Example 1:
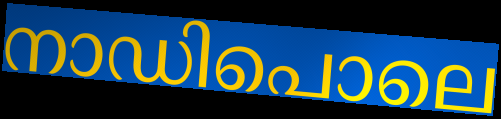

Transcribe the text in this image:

നാഡിപൊലെ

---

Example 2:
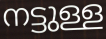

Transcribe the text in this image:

നട്ടുള്ള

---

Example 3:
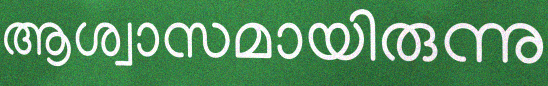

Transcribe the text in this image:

ആശ്വാസമായിരുന്നു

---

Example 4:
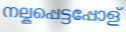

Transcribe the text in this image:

നല്കപ്പെട്ടപ്പോള്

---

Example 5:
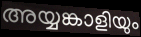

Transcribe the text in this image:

അയ്യങ്കാളിയും